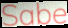
Sabe